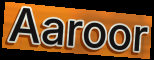
Aaroor